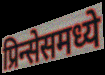
प्रिन्सेसमध्ये